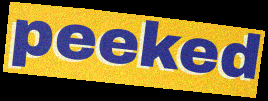
peeked